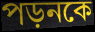
পড়নকে